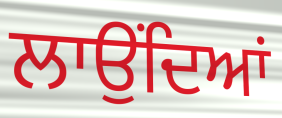
ਲਾਉਂਦਿਆਂ